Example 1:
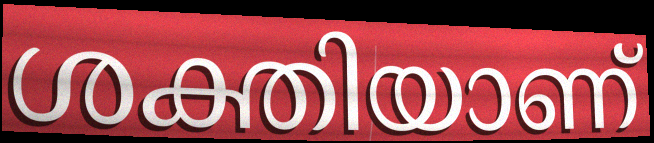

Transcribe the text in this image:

ശക്തിയാണ്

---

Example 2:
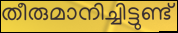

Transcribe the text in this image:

തീരുമാനിച്ചിട്ടുണ്ട്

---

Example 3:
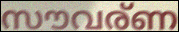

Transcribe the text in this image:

സൗവര്ണ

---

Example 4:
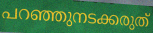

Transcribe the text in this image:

പറഞ്ഞുനടക്കരുത്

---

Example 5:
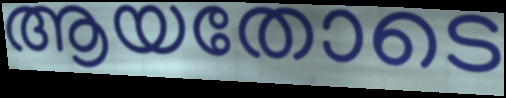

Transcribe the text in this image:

ആയതോടെ